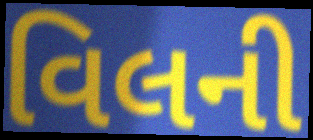
વિલની